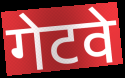
गेटवे